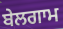
ਬੇਲਗਾਮ